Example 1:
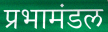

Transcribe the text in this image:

प्रभामंडल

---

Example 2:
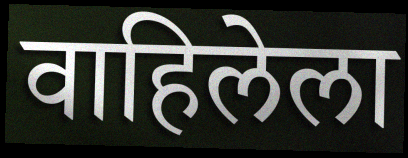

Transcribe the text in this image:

वाहिलेला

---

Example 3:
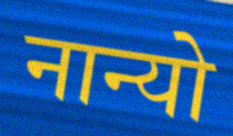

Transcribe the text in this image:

नान्यो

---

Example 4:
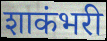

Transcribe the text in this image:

शाकंभरी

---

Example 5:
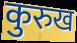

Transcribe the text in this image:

कुरुख